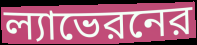
ল্যাভেরনের